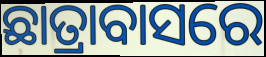
ଛାତ୍ରାବାସରେ